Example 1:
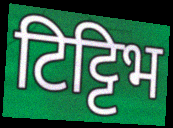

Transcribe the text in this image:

टिट्टिभ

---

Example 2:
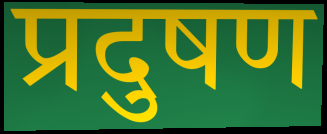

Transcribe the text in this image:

प्रदुषण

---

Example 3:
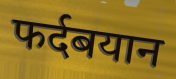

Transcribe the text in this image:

फर्दबयान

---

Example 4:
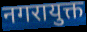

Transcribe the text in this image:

नगरायुक्त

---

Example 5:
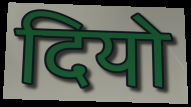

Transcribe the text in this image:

दियो